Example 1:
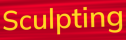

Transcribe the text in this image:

Sculpting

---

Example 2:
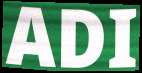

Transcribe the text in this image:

ADI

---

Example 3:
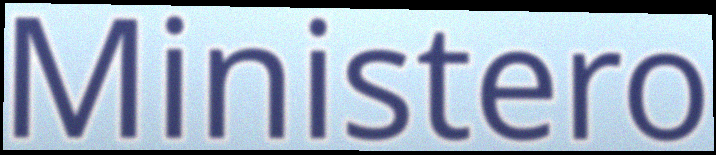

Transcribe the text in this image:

Ministero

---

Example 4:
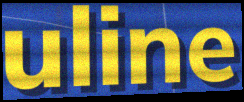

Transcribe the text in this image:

uline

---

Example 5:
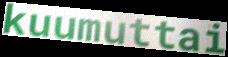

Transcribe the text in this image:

kuumuttai